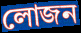
লোজন